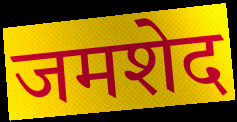
जमशेद